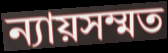
ন্যায়সম্মত